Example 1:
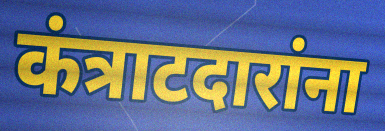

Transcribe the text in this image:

कंत्राटदारांना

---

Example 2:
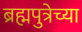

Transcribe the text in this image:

ब्रह्मपुत्रेच्या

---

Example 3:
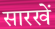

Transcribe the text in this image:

सारखें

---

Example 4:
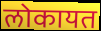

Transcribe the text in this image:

लोकायत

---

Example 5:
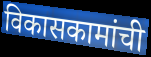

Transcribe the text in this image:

विकासकामांची